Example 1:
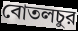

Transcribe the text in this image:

বোতলচুর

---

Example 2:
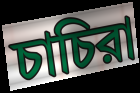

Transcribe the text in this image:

চাচিরা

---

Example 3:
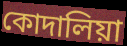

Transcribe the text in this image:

কোদালিয়া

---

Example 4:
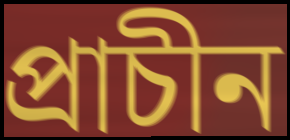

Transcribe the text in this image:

প্রাচীন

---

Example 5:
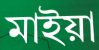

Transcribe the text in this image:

মাইয়া